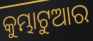
କୁମ୍ଭାଟୁଆର